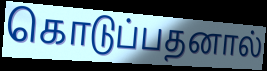
கொடுப்பதனால்